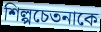
শিল্পচেতনাকে